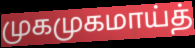
முகமுகமாய்த்